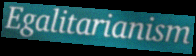
Egalitarianism